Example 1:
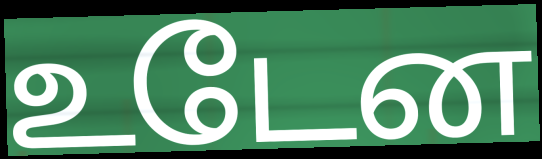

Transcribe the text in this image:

உடேன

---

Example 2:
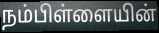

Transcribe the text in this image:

நம்பிள்ளையின்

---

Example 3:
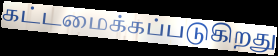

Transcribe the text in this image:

கட்டமைக்கப்படுகிறது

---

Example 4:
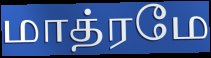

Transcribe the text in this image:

மாத்ரமே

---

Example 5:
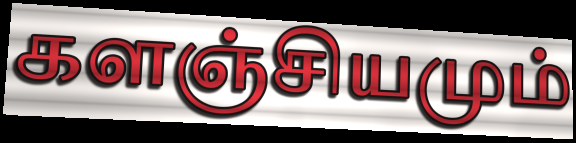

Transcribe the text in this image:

களஞ்சியமும்